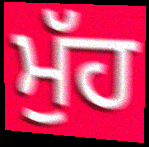
ਮੁੱਹ